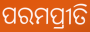
ପରମପ୍ରୀତି